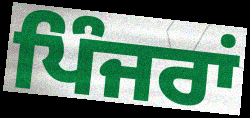
ਪਿੰਜਰਾਂ